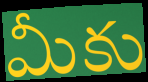
మీకు